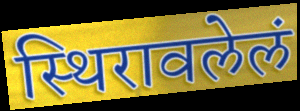
स्थिरावलेलं